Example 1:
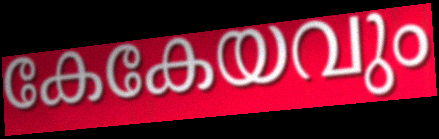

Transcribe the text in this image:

കേകേയവും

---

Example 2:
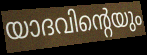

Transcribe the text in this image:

യാദവിന്റെയും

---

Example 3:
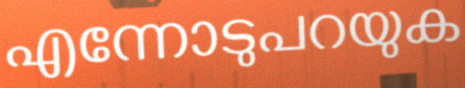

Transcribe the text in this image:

എന്നോടുപറയുക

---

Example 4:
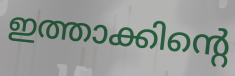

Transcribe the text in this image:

ഇത്താക്കിന്റെ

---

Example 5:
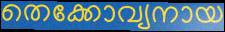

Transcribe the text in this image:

തെക്കോവ്യനായ